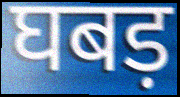
घबड़